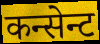
कन्सेन्ट